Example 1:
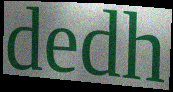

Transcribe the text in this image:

dedh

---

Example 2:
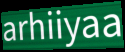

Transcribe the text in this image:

arhiiyaa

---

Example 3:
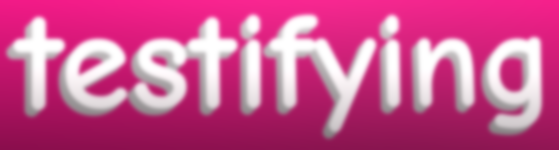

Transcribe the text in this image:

testifying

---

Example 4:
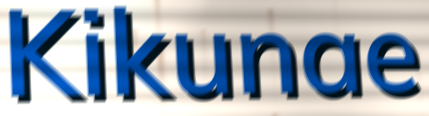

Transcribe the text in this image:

Kikunae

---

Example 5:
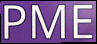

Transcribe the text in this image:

PME